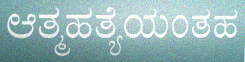
ಆತ್ಮಹತ್ಯೆಯಂತಹ